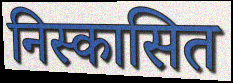
निस्कासित